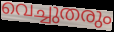
വെച്ചുതരും